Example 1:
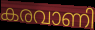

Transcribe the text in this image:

കരവാണി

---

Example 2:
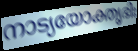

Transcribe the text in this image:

നാട്യയോക്തൃഭിഃ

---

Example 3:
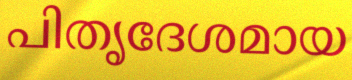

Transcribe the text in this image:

പിതൃദേശമായ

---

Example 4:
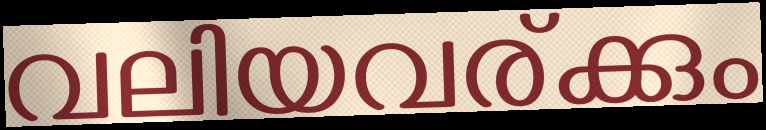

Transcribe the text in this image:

വലിയവര്ക്കും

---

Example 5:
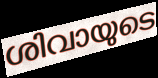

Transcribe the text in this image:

ശിവായുടെ